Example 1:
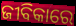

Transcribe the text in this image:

ଜୀବିକାରେ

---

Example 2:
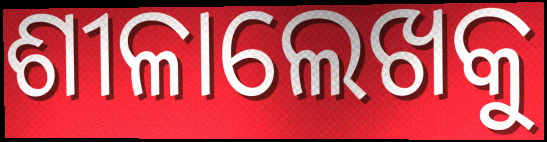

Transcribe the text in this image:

ଶୀଳାଲେଖକୁ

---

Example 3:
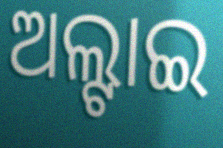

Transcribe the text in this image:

ଅଲ୍ଟାଇ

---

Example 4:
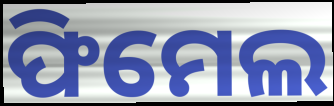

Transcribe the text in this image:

ଫିମେଲ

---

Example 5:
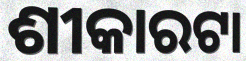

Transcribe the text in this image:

ଶୀକାରଟା